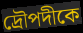
দ্রৌপদীকে